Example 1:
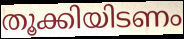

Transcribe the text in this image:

തൂക്കിയിടണം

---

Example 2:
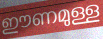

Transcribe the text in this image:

ഈണമുള്ള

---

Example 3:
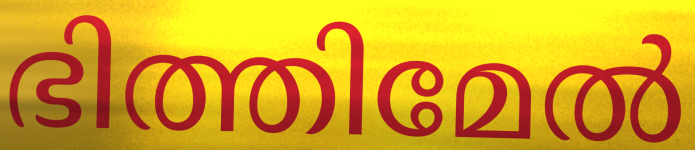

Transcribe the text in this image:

ഭിത്തിമേൽ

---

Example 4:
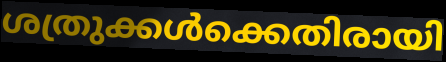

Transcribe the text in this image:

ശത്രുക്കൾക്കെതിരായി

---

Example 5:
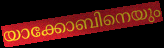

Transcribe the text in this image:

യാക്കോബിനെയും